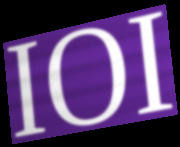
IOI